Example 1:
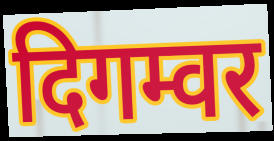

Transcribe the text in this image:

दिगम्वर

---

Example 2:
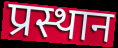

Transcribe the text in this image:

प्रस्थान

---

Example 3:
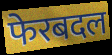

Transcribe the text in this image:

फेरबदल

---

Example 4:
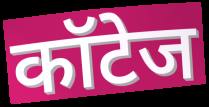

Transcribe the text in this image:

कॉटेज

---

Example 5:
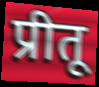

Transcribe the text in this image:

प्रीतू